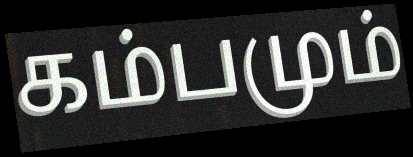
கம்பமும்